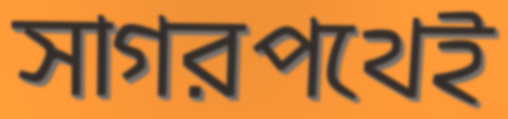
সাগরপথেই